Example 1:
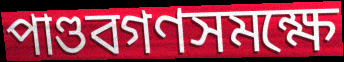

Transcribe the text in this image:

পাণ্ডবগণসমক্ষে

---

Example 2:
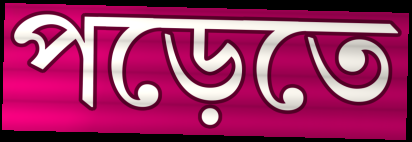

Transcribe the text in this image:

পড়েতে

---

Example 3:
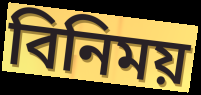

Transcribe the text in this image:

বিনিময়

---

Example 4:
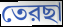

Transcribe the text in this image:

তেরছা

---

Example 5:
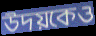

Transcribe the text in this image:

উদয়কেও